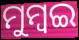
ମୁମ୍ବଇ